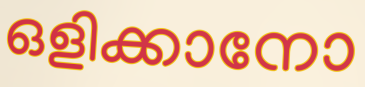
ഒളിക്കാനോ